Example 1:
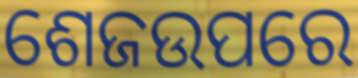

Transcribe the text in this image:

ଶେଜଉପରେ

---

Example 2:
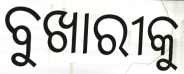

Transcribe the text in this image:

ବୁଖାରୀକୁ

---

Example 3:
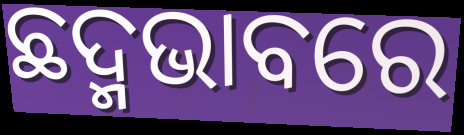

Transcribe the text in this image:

ଛଦ୍ମଭାବରେ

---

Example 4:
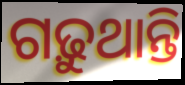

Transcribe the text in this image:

ଗଢ଼ୁଥାନ୍ତି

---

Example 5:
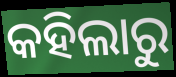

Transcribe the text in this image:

କହିଲାରୁ